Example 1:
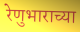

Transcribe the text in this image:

रेणुभाराच्या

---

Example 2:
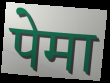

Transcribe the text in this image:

पेमा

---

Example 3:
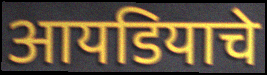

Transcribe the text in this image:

आयडियाचे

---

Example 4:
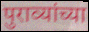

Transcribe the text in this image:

पुराव्यांच्या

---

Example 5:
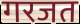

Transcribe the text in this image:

गरजत